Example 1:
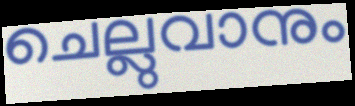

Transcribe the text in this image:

ചെല്ലുവാനും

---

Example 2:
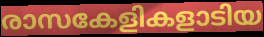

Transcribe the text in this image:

രാസകേളികളാടിയ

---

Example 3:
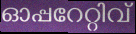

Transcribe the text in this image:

ഓപ്പറേറ്റിവ്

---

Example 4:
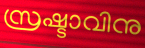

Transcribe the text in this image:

സ്രഷ്ടാവിനു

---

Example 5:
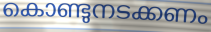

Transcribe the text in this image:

കൊണ്ടുനടക്കണം